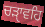
ਚੜੑਾਵਹਿ